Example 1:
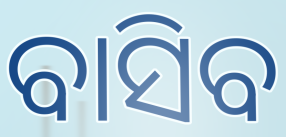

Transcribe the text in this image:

ବାସିବ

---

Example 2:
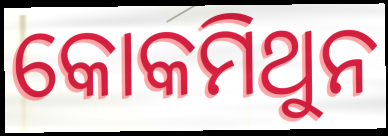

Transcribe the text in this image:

କୋକମିଥୁନ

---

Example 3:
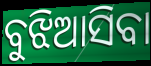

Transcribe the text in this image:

ବୁଝିଆସିବା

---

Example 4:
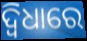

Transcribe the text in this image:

ଦ୍ୱିଧାରେ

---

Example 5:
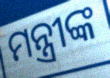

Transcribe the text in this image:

ମନ୍ତ୍ରୀଙ୍କ